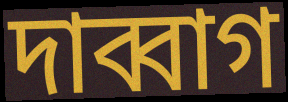
দাব্বাগ